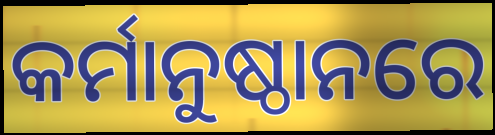
କର୍ମାନୁଷ୍ଠାନରେ